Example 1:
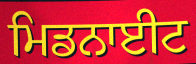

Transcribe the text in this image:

ਮਿਡਨਾਈਟ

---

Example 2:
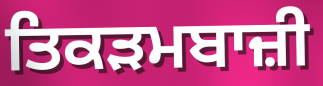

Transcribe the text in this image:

ਤਿਕੜਮਬਾਜ਼ੀ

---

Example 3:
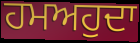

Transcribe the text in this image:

ਹਮਅਹੁਦਾ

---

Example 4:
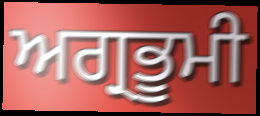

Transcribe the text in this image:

ਅਗ੍ਰਭੂਮੀ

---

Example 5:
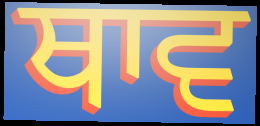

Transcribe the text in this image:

ਥਾਵ